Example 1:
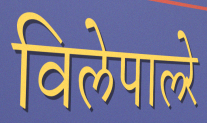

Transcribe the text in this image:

विलेपाल्रे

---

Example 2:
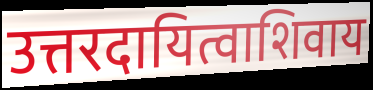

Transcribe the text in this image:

उत्तरदायित्वाशिवाय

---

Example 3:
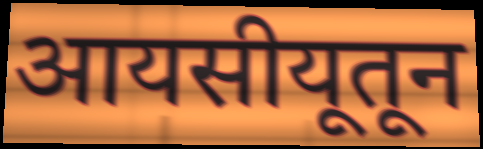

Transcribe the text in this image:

आयसीयूतून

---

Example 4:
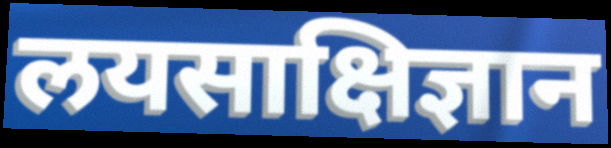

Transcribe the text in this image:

लयसाक्षिज्ञान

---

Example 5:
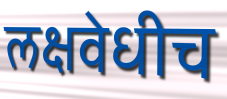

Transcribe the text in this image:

लक्षवेधीच